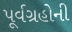
પૂર્વગ્રહોની